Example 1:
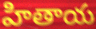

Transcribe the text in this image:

హితాయ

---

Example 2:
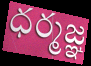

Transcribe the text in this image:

ధర్మజ్ఞ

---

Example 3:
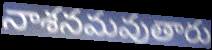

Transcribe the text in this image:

నాశనమవుతారు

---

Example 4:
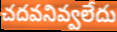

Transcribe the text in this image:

చదవనివ్వలేదు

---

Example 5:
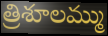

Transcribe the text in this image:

త్రిశూలమ్ము